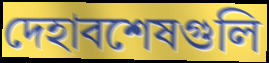
দেহাবশেষগুলি